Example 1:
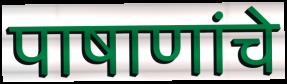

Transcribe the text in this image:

पाषाणांचे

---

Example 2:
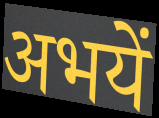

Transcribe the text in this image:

अभयें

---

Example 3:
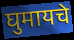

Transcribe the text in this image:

घुमायचे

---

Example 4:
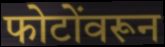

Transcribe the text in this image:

फोटोंवरून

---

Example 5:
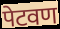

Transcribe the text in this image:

पेटवण